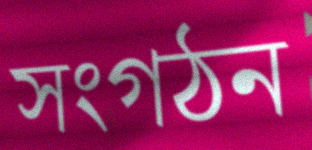
সংগঠন